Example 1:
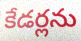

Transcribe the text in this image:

కేడర్లను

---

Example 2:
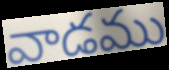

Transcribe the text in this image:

వాడము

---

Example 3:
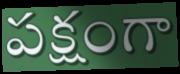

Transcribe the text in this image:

పక్షంగా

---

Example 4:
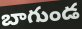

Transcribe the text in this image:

బాగుండ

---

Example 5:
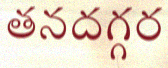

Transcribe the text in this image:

తనదగ్గర